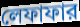
লেফাফার